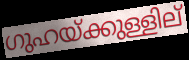
ഗുഹയ്ക്കുള്ളില്